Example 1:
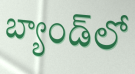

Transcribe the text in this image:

బ్యాండ్‌లో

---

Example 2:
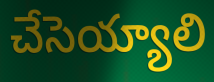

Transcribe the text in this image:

చేసెయ్యాలి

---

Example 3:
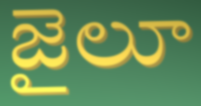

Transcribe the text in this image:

జైలూ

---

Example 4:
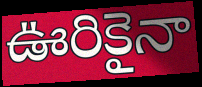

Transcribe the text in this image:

ఊరికైనా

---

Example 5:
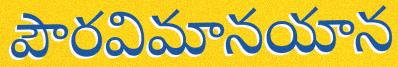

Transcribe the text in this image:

పౌరవిమానయాన